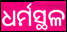
ଧର୍ମସ୍ଥଳ